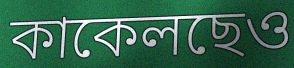
কাকেলছেও